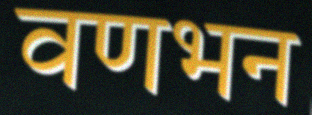
वणभन